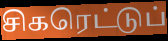
சிகரெட்டுப்